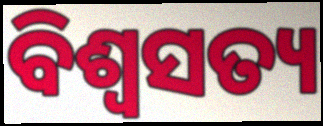
ବିଶ୍ୱସତ୍ୟ